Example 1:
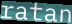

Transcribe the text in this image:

ratan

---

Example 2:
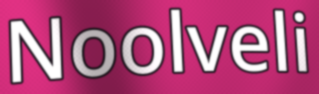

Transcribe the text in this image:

Noolveli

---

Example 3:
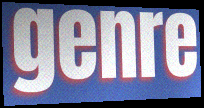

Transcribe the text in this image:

genre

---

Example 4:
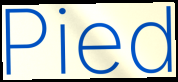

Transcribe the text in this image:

Pied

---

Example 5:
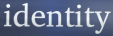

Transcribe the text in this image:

identity